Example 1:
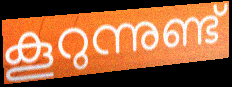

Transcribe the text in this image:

കൂറുന്നുണ്ട്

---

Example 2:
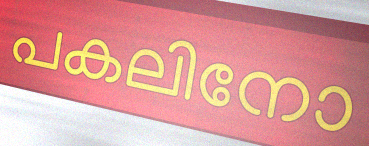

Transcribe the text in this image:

പകലിനോ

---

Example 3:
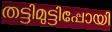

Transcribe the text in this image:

തട്ടിമുട്ടിപ്പോയി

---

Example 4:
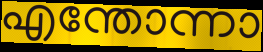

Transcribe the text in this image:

എന്തോന്നാ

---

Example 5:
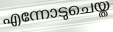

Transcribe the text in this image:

എന്നോടുചെയ്ത